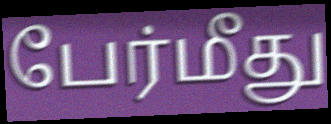
பேர்மீது